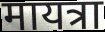
मायत्रा